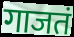
गाजतं